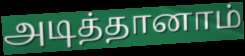
அடித்தானாம்